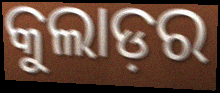
କୁଲାଡ଼ର